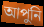
আপুনি